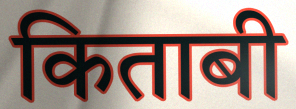
किताबी